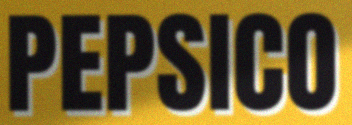
PEPSICO